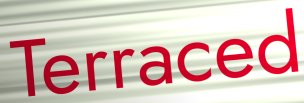
Terraced